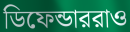
ডিফেন্ডাররাও